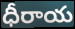
ధీరాయ